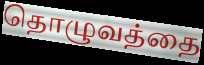
தொழுவத்தை